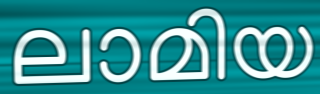
ലാമിയ